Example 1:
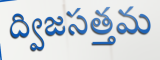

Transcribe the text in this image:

ద్విజసత్తమ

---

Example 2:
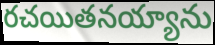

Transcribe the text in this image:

రచయితనయ్యాను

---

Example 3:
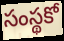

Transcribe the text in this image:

సంస్థకో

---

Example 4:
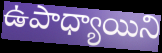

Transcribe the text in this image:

ఉపాధ్యాయిని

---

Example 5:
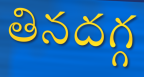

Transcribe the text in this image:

తినదగ్గ